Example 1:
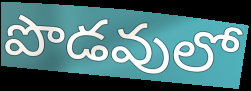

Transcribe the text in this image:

పొడవులో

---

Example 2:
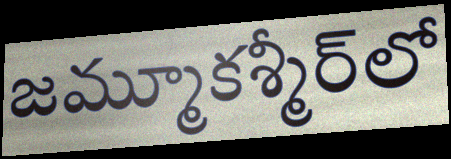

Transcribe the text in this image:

జమ్మూకశ్మీర్‌లో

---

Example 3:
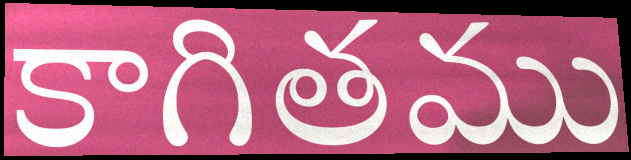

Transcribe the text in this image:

కాగితము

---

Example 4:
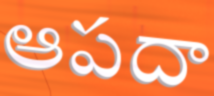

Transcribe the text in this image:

ఆపదా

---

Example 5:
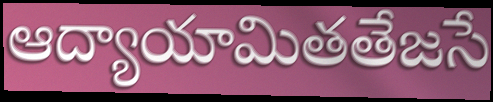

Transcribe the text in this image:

ఆద్యాయామితతేజసే